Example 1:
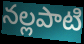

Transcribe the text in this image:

నల్లపాటి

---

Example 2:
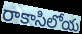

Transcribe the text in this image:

రాకాసిలోయ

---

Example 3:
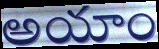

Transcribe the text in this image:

అయాం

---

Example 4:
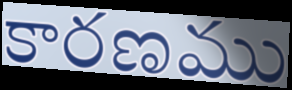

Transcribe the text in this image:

కారణము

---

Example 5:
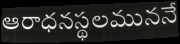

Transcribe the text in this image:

ఆరాధనస్థలముననే